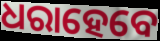
ଧରାହେବେ